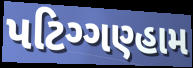
પટિગ્ગણ્હામ